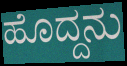
ಹೊದ್ದನು